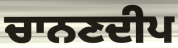
ਚਾਨਣਦੀਪ